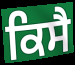
ਕਿਸੈ